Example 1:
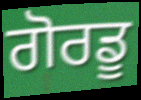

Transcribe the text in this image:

ਗੋਰਡੂ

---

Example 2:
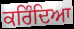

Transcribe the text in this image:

ਕਰਿੰਦਿਆ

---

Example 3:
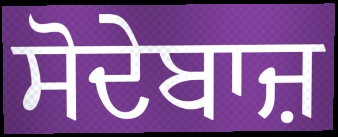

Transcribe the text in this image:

ਸੋਦੇਬਾਜ਼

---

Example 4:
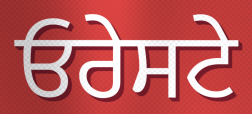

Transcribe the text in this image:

ਓਰੇਸਟੇ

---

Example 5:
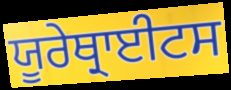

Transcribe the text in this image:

ਯੂਰੇਥ੍ਰਾਈਟਸ